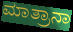
ಮಾತ್ರಾನಾ